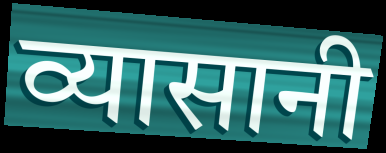
व्यासानी